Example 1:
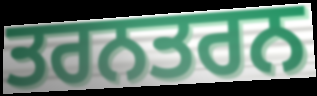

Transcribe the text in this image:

ਤਰਨਤਰਨ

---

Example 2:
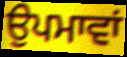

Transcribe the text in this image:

ਉਪਮਾਵਾਂ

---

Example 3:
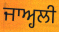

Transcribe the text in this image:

ਜਾਅ੍ਹਲੀ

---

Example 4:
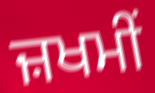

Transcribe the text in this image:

ਜ਼ਖਮੀਂ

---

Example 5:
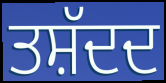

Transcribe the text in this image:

ਤਸ਼ੱਦਦ